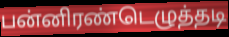
பன்னிரண்டெழுத்தடி